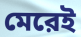
মেরেই